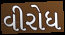
વીરોધ